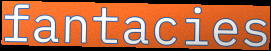
fantacies